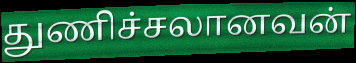
துணிச்சலானவன்